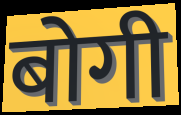
बोगी